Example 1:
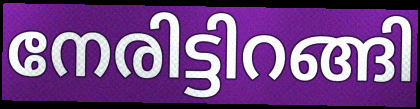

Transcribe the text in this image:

നേരിട്ടിറങ്ങി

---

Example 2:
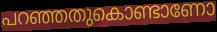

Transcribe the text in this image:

പറഞ്ഞതുകൊണ്ടാണോ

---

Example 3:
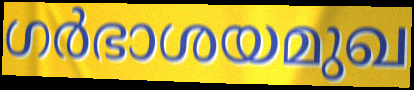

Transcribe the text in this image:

ഗർഭാശയമുഖ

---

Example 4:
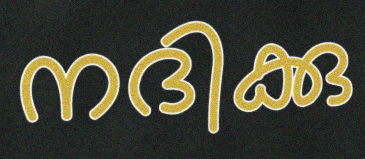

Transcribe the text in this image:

നദിക്കു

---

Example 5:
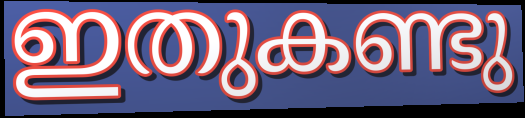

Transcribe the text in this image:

ഇതുകണ്ടു